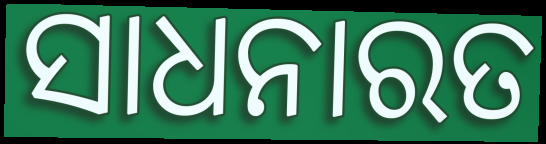
ସାଧନାରତ